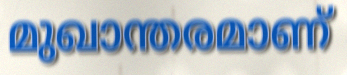
മുഖാന്തരമാണ്